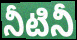
నీటినీ